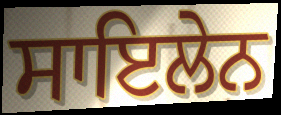
ਸਾਇਲੇਨ